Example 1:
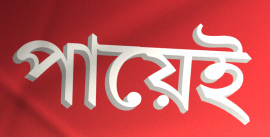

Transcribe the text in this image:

পায়েই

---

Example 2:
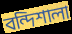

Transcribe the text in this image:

বন্দিশালা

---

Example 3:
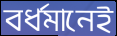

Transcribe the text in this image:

বর্ধমানেই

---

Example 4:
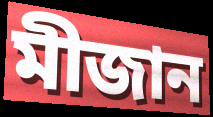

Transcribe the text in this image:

মীজান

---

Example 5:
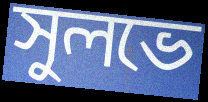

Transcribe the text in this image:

সুলভে